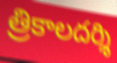
త్రికాలదర్శి